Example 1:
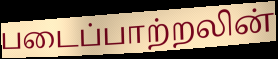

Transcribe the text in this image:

படைப்பாற்றலின்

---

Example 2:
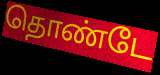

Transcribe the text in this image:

தொண்டே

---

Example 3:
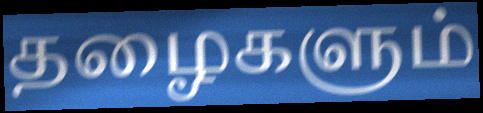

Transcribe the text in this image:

தழைகளும்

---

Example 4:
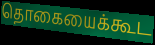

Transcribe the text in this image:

தொகையைக்கூட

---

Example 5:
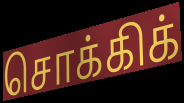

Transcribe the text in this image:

சொக்கிக்